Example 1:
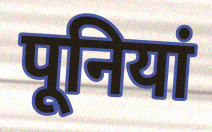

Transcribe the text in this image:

पूनियां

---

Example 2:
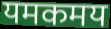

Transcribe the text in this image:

यमकमय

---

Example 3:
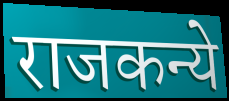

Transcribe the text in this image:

राजकन्ये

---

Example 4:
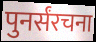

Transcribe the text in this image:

पुनर्संरचना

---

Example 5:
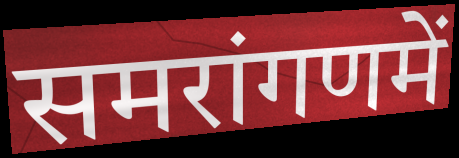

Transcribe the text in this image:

समरांगणमें